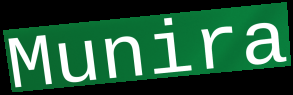
Munira